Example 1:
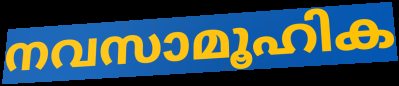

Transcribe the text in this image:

നവസാമൂഹിക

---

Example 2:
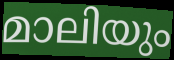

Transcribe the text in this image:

മാലിയും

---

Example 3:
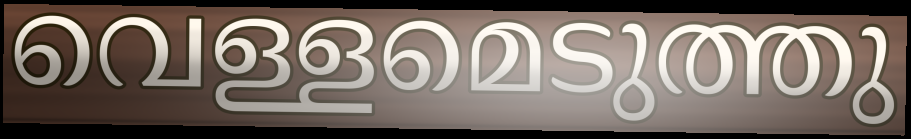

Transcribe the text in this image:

വെള്ളമെടുത്തു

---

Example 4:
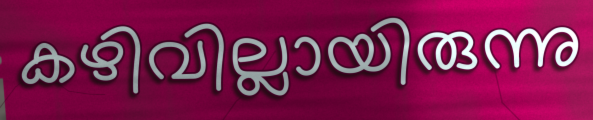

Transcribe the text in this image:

കഴിവില്ലായിരുന്നു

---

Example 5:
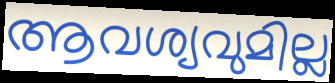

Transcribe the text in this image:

ആവശ്യവുമില്ല